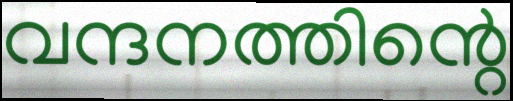
വന്ദനത്തിന്റെ